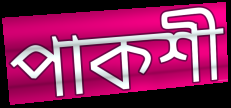
পাকশী